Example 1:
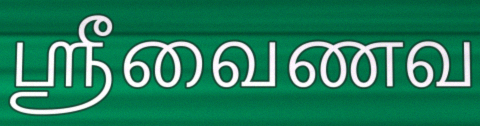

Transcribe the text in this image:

ஸ்ரீவைணவ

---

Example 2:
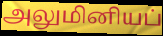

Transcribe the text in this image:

அலுமினியப்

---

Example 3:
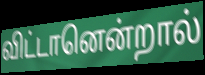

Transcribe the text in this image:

விட்டானென்றால்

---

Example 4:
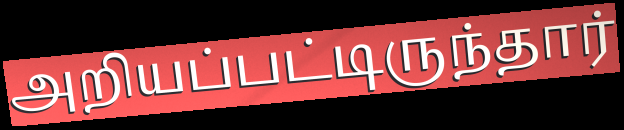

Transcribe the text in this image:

அறியப்பட்டிருந்தார்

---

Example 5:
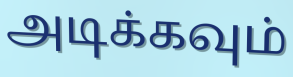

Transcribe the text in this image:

அடிக்கவும்